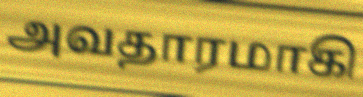
அவதாரமாகி